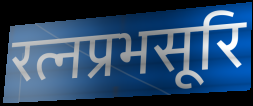
रत्नप्रभसूरि